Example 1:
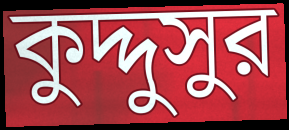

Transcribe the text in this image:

কুদ্দুসুর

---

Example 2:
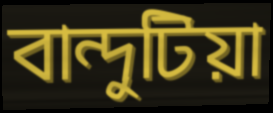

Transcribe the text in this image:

বান্দুটিয়া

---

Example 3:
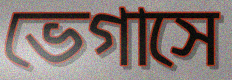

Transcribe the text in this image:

ভেগাসে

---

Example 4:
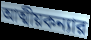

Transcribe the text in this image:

আত্মীয়কন্যার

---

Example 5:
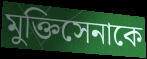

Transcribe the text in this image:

মুক্তিসেনাকে